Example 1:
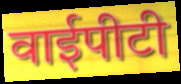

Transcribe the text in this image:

वाईपीटी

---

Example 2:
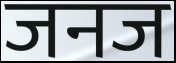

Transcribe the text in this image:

जनज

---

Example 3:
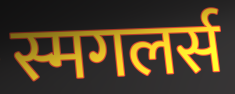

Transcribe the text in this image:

स्‍मगलर्स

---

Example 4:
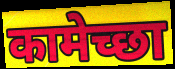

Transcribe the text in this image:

कामेच्छा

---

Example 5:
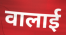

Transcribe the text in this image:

वालाई